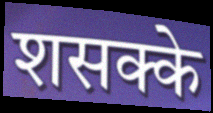
शसक्के